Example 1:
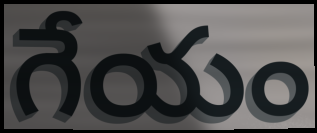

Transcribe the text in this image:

గేయం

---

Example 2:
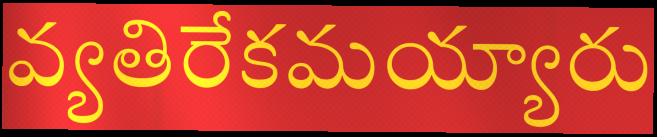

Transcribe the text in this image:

వ్యతిరేకమయ్యారు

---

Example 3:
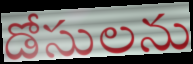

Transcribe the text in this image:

డోసులను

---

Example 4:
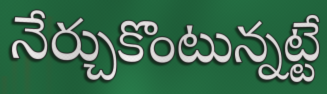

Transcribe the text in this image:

నేర్చుకొంటున్నట్టే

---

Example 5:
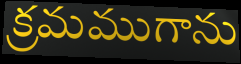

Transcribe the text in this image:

క్రమముగాను